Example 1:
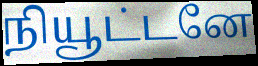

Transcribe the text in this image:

நியூட்டனே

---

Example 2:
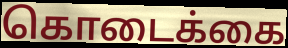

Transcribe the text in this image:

கொடைக்கை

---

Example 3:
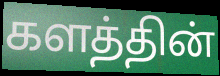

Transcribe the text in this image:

களத்தின்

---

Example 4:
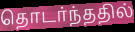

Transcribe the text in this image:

தொடர்ந்ததில்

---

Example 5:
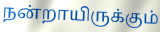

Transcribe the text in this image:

நன்றாயிருக்கும்